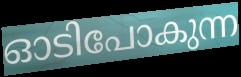
ഓടിപോകുന്ന